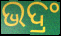
ଭଦ୍ରଂ